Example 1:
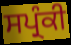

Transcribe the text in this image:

ਸਪ੍ਰੰਕੀ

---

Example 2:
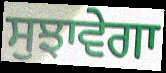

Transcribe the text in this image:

ਸੁਝਾਵੇਗਾ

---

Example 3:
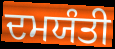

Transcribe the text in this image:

ਦਮਯੰਤੀ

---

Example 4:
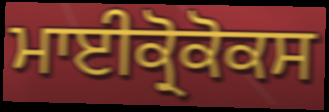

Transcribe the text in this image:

ਮਾਈਕ੍ਰੋਕੋਕਸ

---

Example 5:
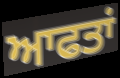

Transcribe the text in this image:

ਆਫਤਾਂ